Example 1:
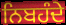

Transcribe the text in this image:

ਨਿਬਹੰਦੇ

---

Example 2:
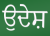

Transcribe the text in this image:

ਉਦੇਸ਼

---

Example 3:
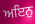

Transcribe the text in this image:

ਅਇਨੁ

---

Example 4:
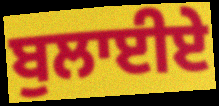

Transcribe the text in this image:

ਬੁਲਾਈਏ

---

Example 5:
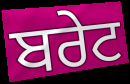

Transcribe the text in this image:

ਬਰੇਟ